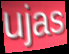
ujas